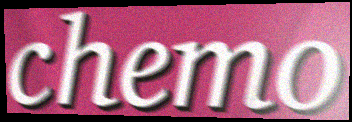
chemo